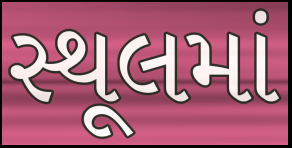
સ્થૂલમાં